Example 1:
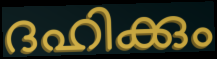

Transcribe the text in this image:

ദഹിക്കും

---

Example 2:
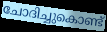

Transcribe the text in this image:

ചോദിച്ചുകൊണ്ട്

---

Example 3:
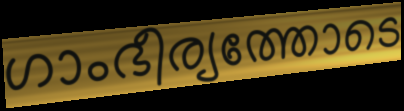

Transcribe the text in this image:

ഗാംഭീര്യത്തോടെ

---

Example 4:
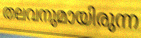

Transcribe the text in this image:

തലവനുമായിരുന്ന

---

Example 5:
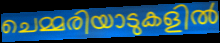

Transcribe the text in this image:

ചെമ്മരിയാടുകളിൽ